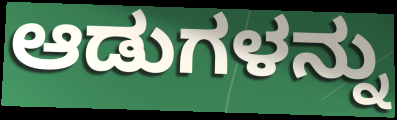
ಆಡುಗಳನ್ನು